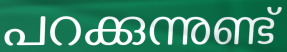
പറക്കുന്നുണ്ട്